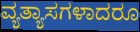
ವ್ಯತ್ಯಾಸಗಳಾದರೂ